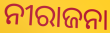
ନୀରାଜନା